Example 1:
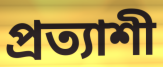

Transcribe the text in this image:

প্রত্যাশী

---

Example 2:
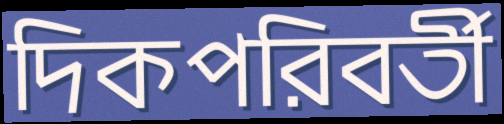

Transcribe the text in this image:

দিকপরিবর্তী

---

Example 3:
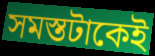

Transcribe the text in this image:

সমস্তটাকেই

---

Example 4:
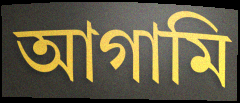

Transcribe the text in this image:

আগামি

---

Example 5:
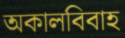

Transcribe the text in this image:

অকালবিবাহ